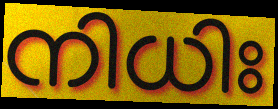
നിധിഃ